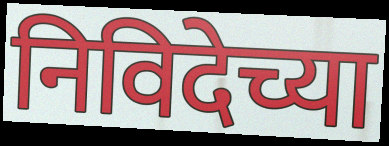
निविदेच्या